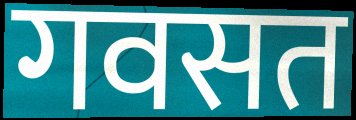
गवसत